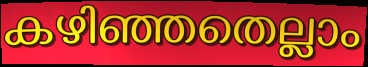
കഴിഞ്ഞതെല്ലാം